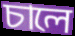
চালে